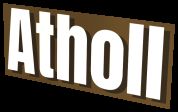
Atholl